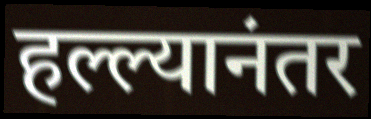
हल्ल्यानंतर